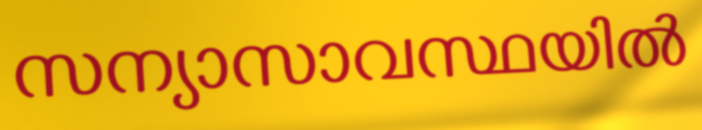
സന്യാസാവസ്ഥയിൽ